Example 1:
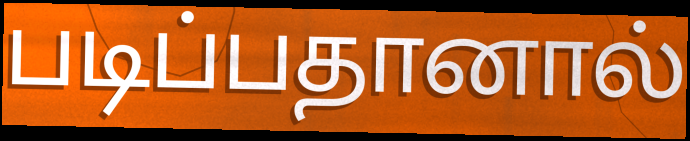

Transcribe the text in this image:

படிப்பதானால்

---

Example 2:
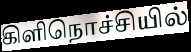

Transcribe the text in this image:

கிளிநொச்சியில்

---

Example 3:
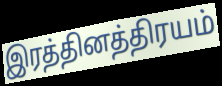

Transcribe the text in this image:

இரத்தினத்திரயம்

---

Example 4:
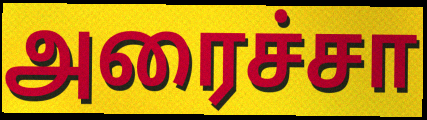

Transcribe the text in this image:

அரைச்சா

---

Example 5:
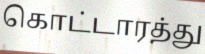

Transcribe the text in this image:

கொட்டாரத்து